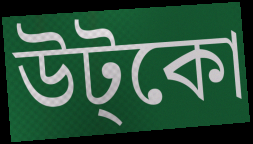
উট্কো